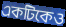
একটিকেও